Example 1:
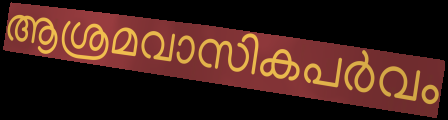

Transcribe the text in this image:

ആശ്രമവാസികപർവം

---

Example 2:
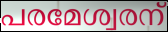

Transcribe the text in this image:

പരമേശ്വരന്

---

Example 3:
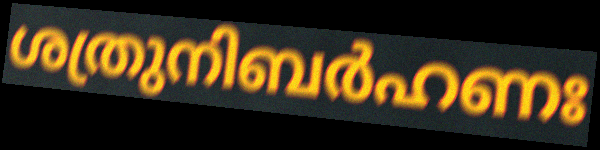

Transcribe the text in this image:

ശത്രുനിബർഹണഃ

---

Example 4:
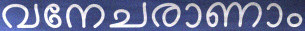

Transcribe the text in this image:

വനേചരാണാം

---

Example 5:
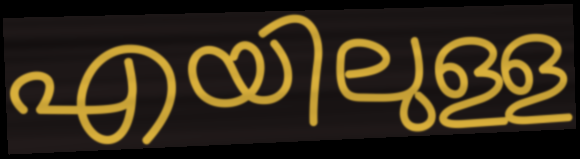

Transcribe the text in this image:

എയിലുള്ള